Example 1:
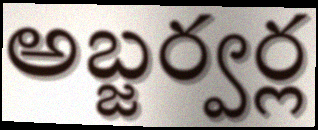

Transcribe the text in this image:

అబ్జర్వర్ల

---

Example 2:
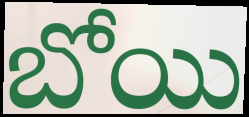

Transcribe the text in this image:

బోయి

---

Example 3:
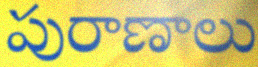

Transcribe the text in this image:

పురాణాలు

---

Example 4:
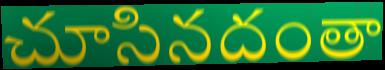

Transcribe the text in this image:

చూసినదంతా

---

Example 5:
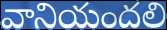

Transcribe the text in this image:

వానియందలి